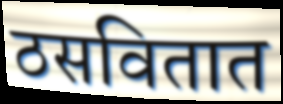
ठसवितात